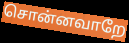
சொன்னவாறே